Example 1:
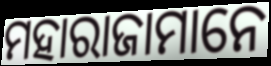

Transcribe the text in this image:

ମହାରାଜାମାନେ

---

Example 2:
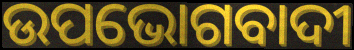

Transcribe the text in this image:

ଉପଭୋଗବାଦୀ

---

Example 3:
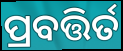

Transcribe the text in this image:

ପ୍ରବତ୍ତିର୍ତ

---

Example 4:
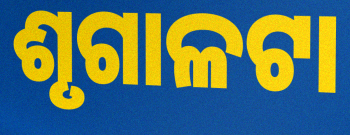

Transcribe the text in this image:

ଶୃଗାଳଟା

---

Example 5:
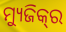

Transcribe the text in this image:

ମ୍ୟୁଜିକ୍‌ର